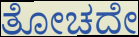
ತೋಚದೇ